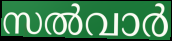
സൽവാർ